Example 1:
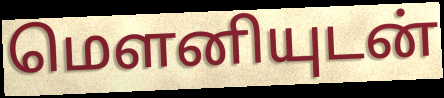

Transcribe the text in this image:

மௌனியுடன்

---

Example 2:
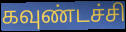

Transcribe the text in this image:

கவுண்டச்சி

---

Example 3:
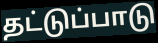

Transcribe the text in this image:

தட்டுப்பாடு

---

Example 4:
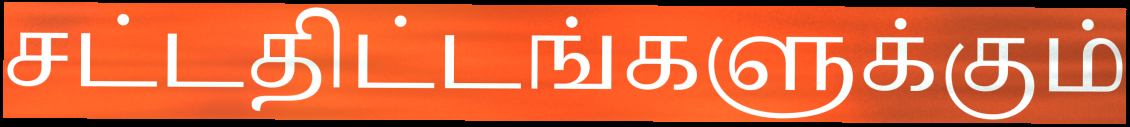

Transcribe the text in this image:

சட்டதிட்டங்களுக்கும்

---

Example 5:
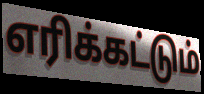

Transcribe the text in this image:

எரிக்கட்டும்